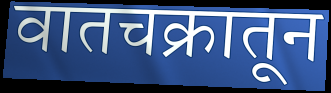
वातचक्रातून